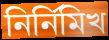
নির্নিমিখ